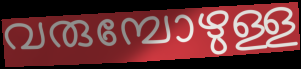
വരുമ്പോഴുള്ള